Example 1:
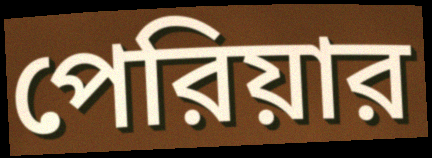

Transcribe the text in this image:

পেরিয়ার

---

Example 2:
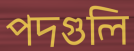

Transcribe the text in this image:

পদগুলি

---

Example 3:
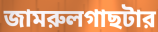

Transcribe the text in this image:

জামরুলগাছটার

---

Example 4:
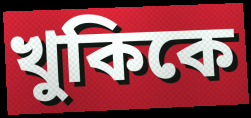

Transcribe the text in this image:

খুকিকে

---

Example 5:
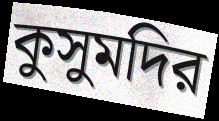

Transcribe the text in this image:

কুসুমদির